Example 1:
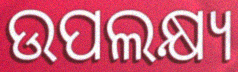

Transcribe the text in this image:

ଉପଲକ୍ଷ୍ୟ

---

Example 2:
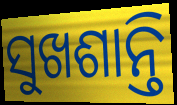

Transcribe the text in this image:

ସୁଖଶାନ୍ତି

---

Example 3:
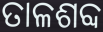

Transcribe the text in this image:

ତାଳଶବ୍ଦ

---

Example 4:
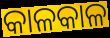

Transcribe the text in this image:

କାଳକାଳ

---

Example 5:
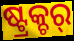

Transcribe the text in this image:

ଷ୍ଟ୍ରକ୍ଚର୍